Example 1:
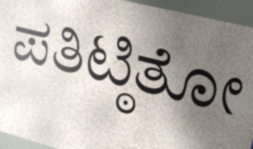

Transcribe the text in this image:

ಪತಿಟ್ಠಿತೋ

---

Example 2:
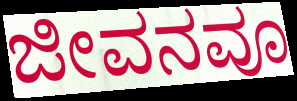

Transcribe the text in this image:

ಜೀವನವೂ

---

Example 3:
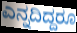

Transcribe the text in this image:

ಎನ್ನದಿದ್ದರೂ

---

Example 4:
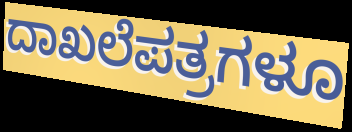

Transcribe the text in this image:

ದಾಖಲೆಪತ್ರಗಳೂ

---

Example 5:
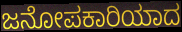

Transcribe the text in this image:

ಜನೋಪಕಾರಿಯಾದ